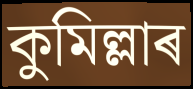
কুমিল্লাৰ